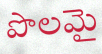
పొలమై